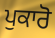
ਪੁਕਾਰੋ